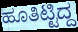
ಹೂತಿಟ್ಟಿದ್ದ